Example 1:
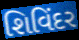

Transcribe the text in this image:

શિવિંદર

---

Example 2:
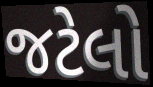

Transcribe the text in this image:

જટેલો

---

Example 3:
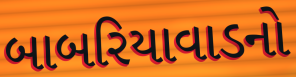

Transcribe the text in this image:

બાબરિયાવાડનો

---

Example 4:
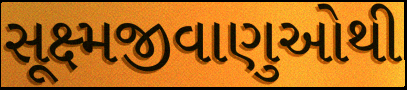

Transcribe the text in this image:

સૂક્ષ્મજીવાણુઓથી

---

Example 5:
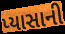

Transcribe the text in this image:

પ્યાસાની